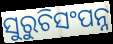
ସୁରୁଚିସଂପନ୍ନ